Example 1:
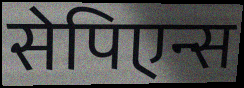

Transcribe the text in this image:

सेपिएन्स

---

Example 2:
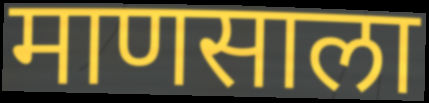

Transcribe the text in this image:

माणसाला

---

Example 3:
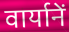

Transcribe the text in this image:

वार्यानें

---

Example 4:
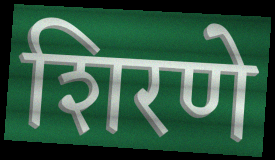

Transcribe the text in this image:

शिरणे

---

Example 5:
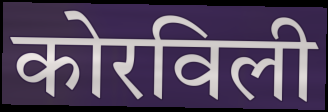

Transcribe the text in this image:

कोरविली